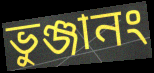
ভুঞ্জানং